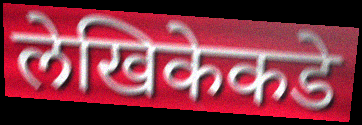
लेखिकेकडे